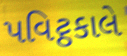
પવિટ્ઠકાલે